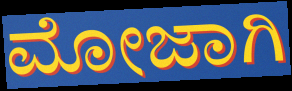
ಮೋಜಾಗಿ